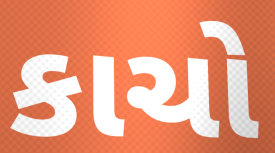
કાચો